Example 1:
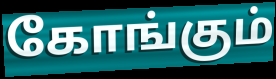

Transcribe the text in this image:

கோங்கும்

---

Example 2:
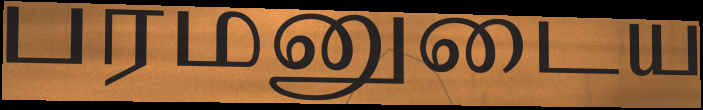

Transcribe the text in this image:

பரமனுடைய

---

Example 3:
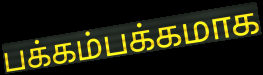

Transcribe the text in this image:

பக்கம்பக்கமாக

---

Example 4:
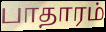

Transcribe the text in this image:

பாதாரம்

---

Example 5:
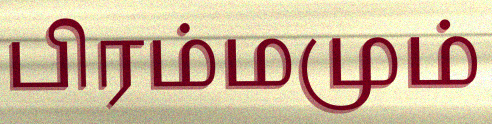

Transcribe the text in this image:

பிரம்மமும்